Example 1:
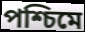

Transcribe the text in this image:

পশ্চিমে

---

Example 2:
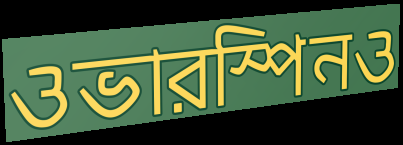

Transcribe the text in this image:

ওভারস্পিনও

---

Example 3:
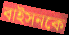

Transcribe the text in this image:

বাইসনকে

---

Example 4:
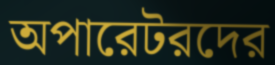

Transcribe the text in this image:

অপারেটরদের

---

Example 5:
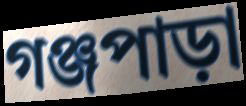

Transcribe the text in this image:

গঞ্জপাড়া